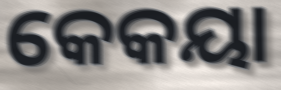
କେକୟା